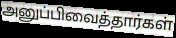
அனுப்பிவைத்தார்கள்